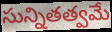
సున్నితత్వమే